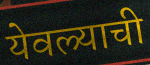
येवल्याची